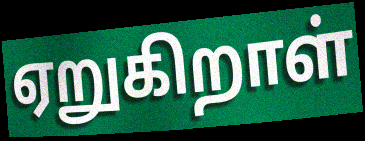
ஏறுகிறாள்